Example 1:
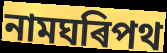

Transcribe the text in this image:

নামঘৰিপথ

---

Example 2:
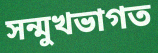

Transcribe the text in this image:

সন্মুখভাগত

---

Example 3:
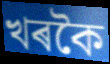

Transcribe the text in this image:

খৰকৈ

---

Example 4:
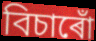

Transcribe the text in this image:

বিচাৰোঁ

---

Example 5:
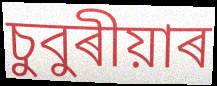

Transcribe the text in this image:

চুবুৰীয়াৰ